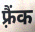
फ़्रैंक